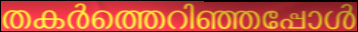
തകർത്തെറിഞ്ഞപ്പോൾ